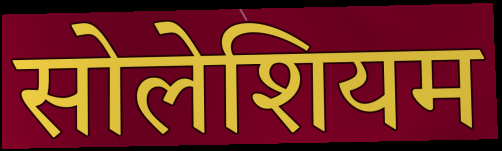
सोलेशियम